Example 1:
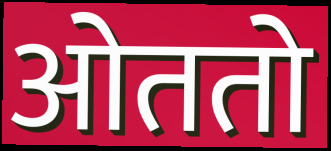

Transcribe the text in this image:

ओततो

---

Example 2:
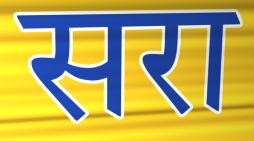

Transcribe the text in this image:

सरा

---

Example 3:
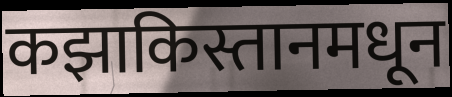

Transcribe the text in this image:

कझाकिस्तानमधून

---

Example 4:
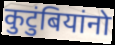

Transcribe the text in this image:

कुटुंबियांनो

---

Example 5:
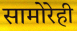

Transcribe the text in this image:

सामोरेही